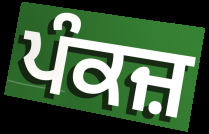
ਪੰਕਜ਼